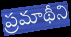
ప్రమాథీని